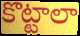
కొట్టాలా